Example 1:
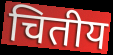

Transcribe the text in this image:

चितीय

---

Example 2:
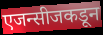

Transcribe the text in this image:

एजन्सीजकडून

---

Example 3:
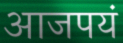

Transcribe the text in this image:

आजपयं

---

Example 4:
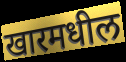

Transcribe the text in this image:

खारमधील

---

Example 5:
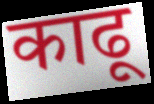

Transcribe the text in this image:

काढू